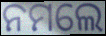
ନମଲେ